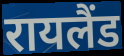
रायलैंड